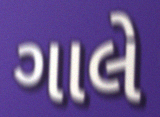
ગાલે